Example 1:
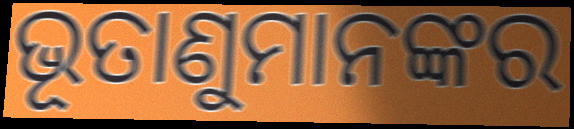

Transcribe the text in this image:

ଭୂତାଣୁମାନଙ୍କର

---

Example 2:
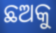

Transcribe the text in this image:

ଛଅକୁ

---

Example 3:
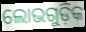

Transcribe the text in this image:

ଲୋଭଗୁଡ଼ିକ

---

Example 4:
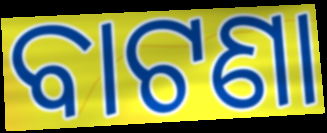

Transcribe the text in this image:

ବାଟଣା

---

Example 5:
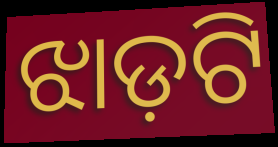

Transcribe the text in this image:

ଝାଡ଼ଟି